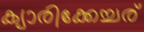
ക്യാരിക്കേച്ചര്